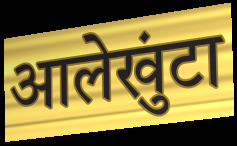
आलेखुंटा